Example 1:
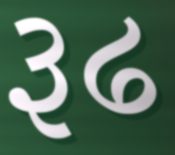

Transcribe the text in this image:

રૂઢ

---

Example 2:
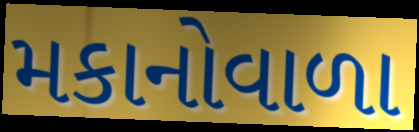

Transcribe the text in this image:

મકાનોવાળા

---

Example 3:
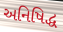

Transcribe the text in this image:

અનિષિદ્ધ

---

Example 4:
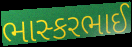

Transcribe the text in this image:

ભાસ્કરભાઈ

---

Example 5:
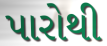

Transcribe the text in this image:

પારોથી